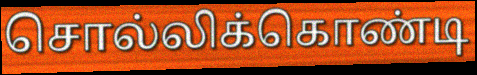
சொல்லிக்கொண்டி